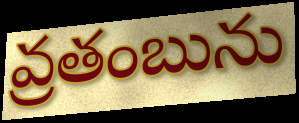
వ్రతంబును